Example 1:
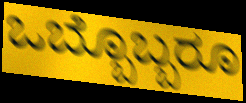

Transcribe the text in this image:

ಒಬ್ಬೊಬ್ಬರೂ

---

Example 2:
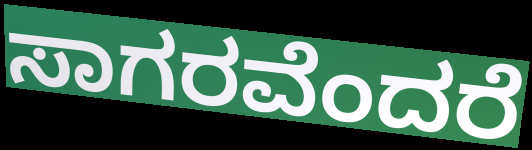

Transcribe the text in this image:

ಸಾಗರವೆಂದರೆ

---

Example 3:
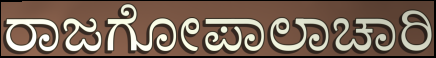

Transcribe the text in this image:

ರಾಜಗೋಪಾಲಾಚಾರಿ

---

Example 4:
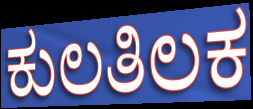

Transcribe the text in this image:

ಕುಲತಿಲಕ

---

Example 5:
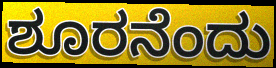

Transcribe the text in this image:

ಶೂರನೆಂದು